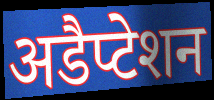
अडैप्टेशन